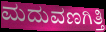
ಮದುವಣಗಿತ್ತಿ